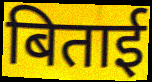
बिताई